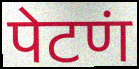
पेटणं